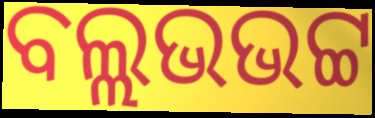
ବଲ୍ଲଭଭଟ୍ଟ